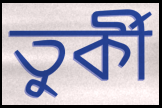
তুৰ্কী